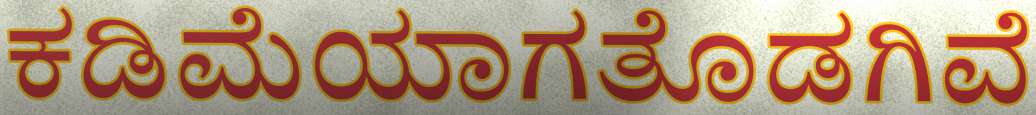
ಕಡಿಮೆಯಾಗತೊಡಗಿವೆ